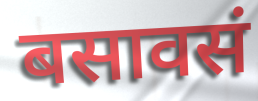
बसावसं